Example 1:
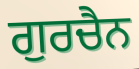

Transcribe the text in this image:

ਗੁਰਚੈਨ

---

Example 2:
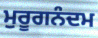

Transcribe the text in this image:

ਮੁਰੂਗਨੰਦਮ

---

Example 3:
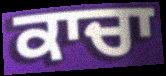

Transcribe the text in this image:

ਕਾਚਾ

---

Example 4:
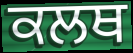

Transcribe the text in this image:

ਕਲਥ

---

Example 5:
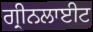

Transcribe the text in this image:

ਗ੍ਰੀਨਲਾਈਟ